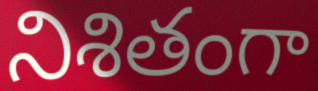
నిశితంగా